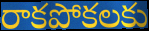
రాకపోకలకు